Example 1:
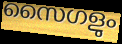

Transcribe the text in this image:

സൈഗളും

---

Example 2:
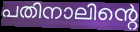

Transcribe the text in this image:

പതിനാലിന്റെ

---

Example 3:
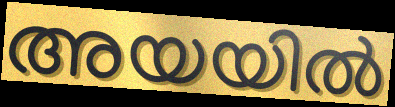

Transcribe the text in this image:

അയയിൽ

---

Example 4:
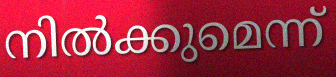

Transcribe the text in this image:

നിൽക്കുമെന്ന്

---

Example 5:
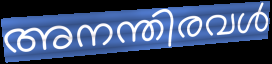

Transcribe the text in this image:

അനന്തിരവൾ